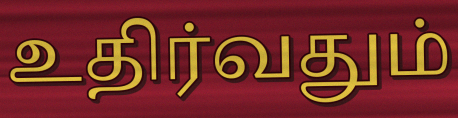
உதிர்வதும்